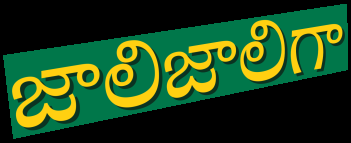
జాలిజాలిగా